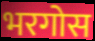
भरगोस